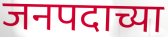
जनपदाच्या